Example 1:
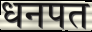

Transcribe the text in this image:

धनपत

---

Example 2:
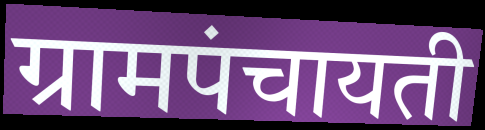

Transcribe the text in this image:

ग्रामपंचायती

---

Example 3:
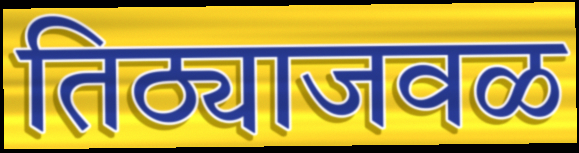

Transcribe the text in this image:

तिठ्याजवळ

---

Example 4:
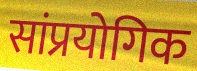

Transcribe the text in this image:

सांप्रयोगिक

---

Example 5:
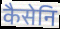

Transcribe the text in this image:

कैसेनि